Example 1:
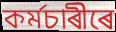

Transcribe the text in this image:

কৰ্মচাৰীৰে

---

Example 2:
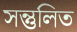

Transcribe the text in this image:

সন্তুলিত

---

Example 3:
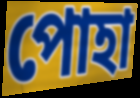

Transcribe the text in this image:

পোহা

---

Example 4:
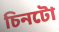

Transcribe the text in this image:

চিনটো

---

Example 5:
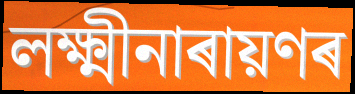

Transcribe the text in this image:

লক্ষ্মীনাৰায়ণৰ